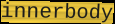
innerbody